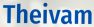
Theivam